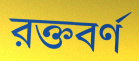
রক্তবর্ণ